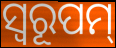
ସ୍ଵରୂପମ୍